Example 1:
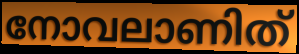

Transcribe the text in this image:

നോവലാണിത്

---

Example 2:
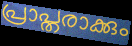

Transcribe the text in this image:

പ്രാപ്തരാക്കും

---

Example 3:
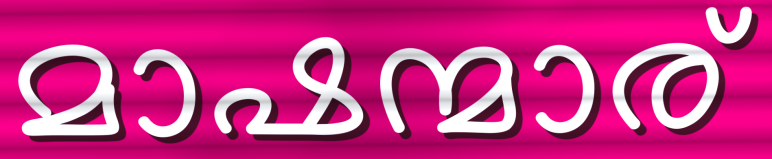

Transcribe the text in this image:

മാഷന്മാര്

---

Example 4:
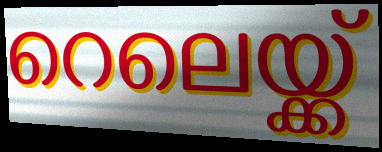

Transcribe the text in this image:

റെലെയ്ക്ക്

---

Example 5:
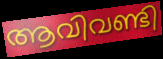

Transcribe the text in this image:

ആവിവണ്ടി